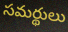
సమర్థులు